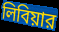
লিবিয়ার